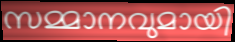
സമ്മാനവുമായി